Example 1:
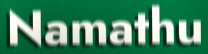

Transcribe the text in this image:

Namathu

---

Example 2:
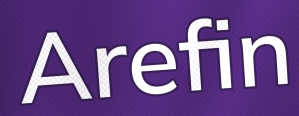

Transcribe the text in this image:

Arefin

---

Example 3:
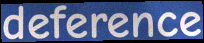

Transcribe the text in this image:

deference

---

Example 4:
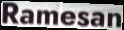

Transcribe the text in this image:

Ramesan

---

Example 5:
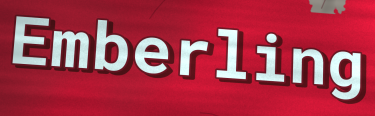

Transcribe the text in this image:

Emberling